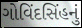
ગોવિંદસિંહનું